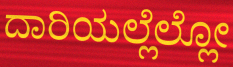
ದಾರಿಯಲ್ಲೆಲ್ಲೋ